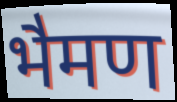
भैमण